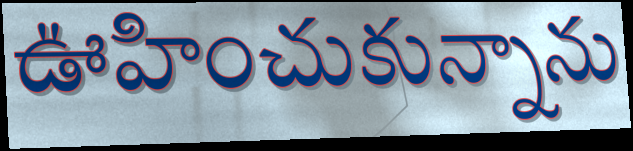
ఊహించుకున్నాను